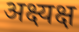
अक्ष्यक्ष